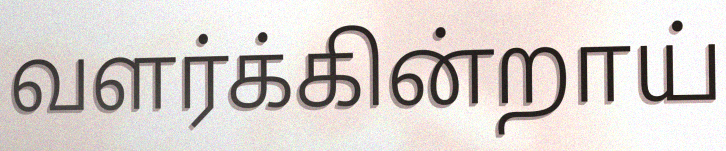
வளர்க்கின்றாய்